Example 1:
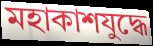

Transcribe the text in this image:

মহাকাশযুদ্ধে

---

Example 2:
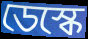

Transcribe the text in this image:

ডেস্কে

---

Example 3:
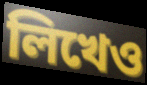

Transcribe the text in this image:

লিখেও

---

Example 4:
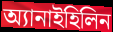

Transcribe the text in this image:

অ্যানাইহিলিন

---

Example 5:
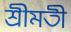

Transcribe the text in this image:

শ্রীমতী